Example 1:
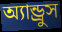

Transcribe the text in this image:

অ্যান্ড্রুস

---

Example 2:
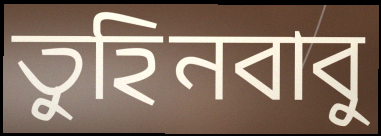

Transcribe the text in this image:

তুহিনবাবু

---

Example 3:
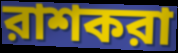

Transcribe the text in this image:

রাশকরা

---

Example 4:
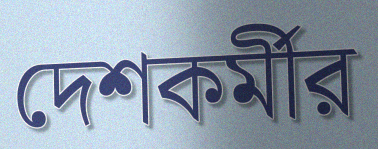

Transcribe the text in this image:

দেশকর্মীর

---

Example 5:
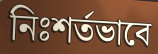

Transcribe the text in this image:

নিঃশর্তভাবে